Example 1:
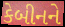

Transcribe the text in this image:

કેબીનને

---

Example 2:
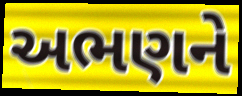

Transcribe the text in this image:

અભણને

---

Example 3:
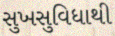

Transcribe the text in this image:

સુખસુવિધાથી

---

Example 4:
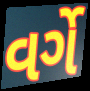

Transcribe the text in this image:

વર્ગે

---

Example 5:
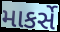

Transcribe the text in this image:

માકર્સે